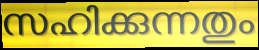
സഹിക്കുന്നതും